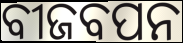
ବୀଜବପନ